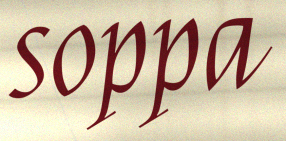
soppa